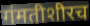
गंमतीशीरच